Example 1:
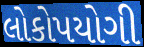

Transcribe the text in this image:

લોકોપયોગી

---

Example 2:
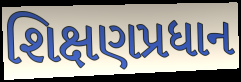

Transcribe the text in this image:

શિક્ષણપ્રધાન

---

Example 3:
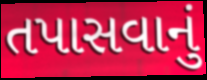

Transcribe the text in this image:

તપાસવાનું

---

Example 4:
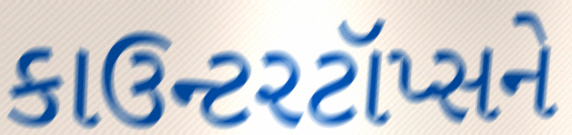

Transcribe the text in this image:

કાઉન્ટરટૉપ્સને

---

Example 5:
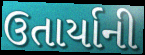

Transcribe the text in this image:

ઉતાર્યાની